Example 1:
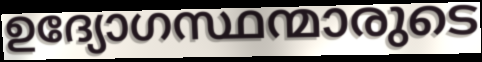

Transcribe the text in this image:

ഉദ്യോഗസ്ഥന്മാരുടെ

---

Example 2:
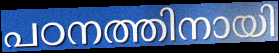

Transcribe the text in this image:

പഠനത്തിനായി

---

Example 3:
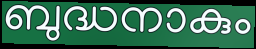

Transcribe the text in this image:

ബുദ്ധനാകും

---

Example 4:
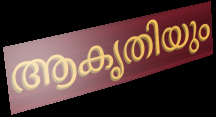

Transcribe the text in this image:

ആകൃതിയും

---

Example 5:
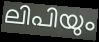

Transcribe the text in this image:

ലിപിയും